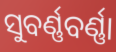
ସୁବର୍ଣ୍ଣବର୍ଣ୍ଣା